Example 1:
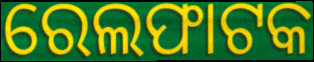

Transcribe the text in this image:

ରେଲଫାଟକ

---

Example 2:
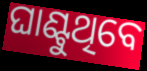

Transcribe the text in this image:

ଘାଣ୍ଟୁଥିବେ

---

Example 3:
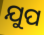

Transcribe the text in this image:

ଯୁପ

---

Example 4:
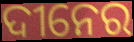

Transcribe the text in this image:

ଦୀନେର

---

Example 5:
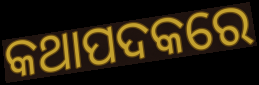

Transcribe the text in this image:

କଥାପଦକରେ